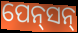
ପେନ୍‍ସନ୍